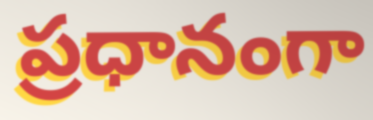
ప్రధానంగా